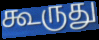
கூருது